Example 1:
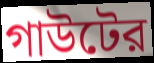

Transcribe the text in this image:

গাউটের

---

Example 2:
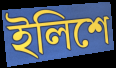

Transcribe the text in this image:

ইলিশে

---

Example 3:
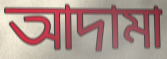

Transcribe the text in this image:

আদামা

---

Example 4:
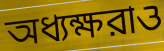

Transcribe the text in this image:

অধ্যক্ষরাও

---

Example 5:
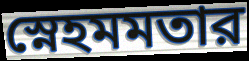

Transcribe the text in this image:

স্নেহমমতার